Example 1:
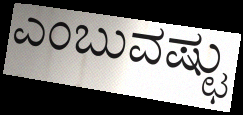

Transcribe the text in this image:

ಎಂಬುವಷ್ಟು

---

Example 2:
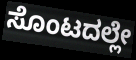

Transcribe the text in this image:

ಸೊಂಟದಲ್ಲೇ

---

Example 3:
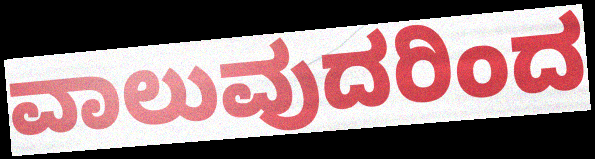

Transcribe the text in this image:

ವಾಲುವುದರಿಂದ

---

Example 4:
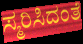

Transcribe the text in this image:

ಸ್ಮರಿಸಿದಂತೆ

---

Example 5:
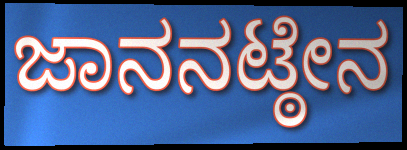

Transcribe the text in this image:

ಜಾನನಟ್ಠೇನ